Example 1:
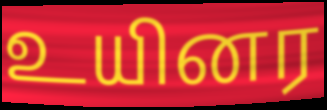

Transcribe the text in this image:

உயினர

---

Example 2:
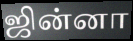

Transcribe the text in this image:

ஜின்னா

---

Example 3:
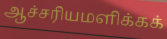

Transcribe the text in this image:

ஆச்சரியமளிக்கக்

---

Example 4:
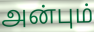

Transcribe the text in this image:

அன்பும்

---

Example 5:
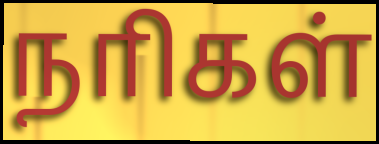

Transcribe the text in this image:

நரிகள்